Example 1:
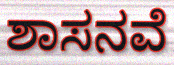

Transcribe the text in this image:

ಶಾಸನವೆ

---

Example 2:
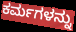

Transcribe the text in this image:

ಕರ್ಮಗಳನ್ನು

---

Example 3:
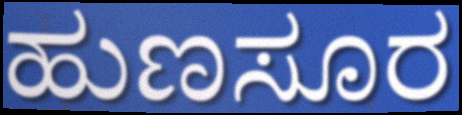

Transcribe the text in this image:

ಹುಣಸೂರ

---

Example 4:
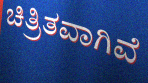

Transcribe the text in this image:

ಚಿತ್ರಿತವಾಗಿವೆ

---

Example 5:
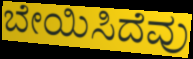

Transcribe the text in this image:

ಬೇಯಿಸಿದೆವು